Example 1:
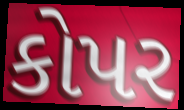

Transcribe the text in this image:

કોપર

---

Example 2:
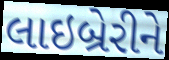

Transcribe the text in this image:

લાઇબ્રેરીને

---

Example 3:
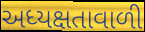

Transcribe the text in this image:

અધ્યક્ષતાવાળી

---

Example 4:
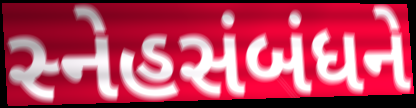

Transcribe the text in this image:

સ્નેહસંબંધને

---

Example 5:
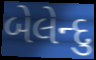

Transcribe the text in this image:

બેલેન્દુ